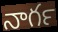
నాగర్‍